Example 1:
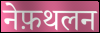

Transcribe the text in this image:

नेफ़थलन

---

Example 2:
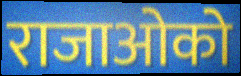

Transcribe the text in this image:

राजाओको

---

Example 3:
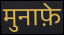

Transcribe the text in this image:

मुनाफ़े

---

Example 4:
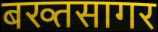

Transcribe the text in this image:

बख्तसागर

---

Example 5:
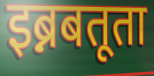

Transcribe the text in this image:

इब्नबतूता